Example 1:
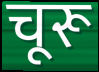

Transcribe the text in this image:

चूरू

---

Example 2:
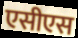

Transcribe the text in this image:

एसीएस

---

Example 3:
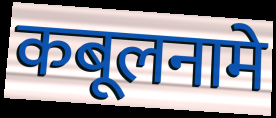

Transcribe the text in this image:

कबूलनामे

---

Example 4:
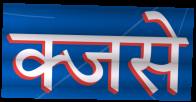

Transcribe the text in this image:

क्जसे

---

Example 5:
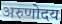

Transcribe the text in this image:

अरुणोदय